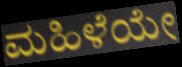
ಮಹಿಳೆಯೇ